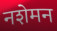
नशेमन